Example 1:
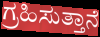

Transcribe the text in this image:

ಗ್ರಹಿಸುತ್ತಾನೆ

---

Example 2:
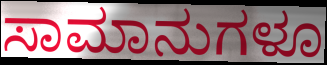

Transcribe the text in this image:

ಸಾಮಾನುಗಳೂ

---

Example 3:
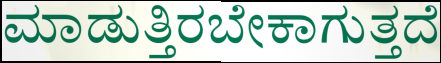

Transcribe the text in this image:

ಮಾಡುತ್ತಿರಬೇಕಾಗುತ್ತದೆ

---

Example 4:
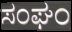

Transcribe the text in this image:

ಸಂಘಂ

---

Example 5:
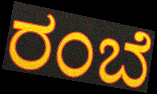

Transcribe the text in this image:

ರಂಬೆ